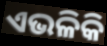
ଏଭଳିକି